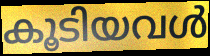
കൂടിയവൾ